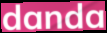
danda